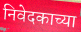
निवेदकाच्या